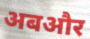
अबऔर